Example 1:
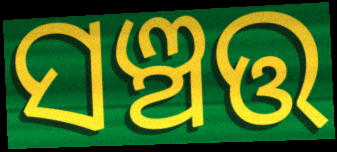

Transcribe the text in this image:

ସଞ୍ଚତ୍ତ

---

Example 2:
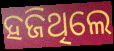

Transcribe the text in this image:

ହଜିଥିଲେ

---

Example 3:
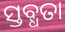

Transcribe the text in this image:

ସ୍ତବ୍ଧତା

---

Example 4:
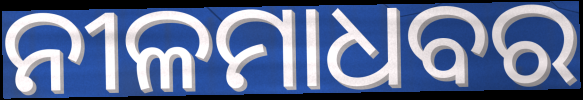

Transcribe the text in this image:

ନୀଳମାଧବର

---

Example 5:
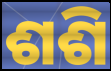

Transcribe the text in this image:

ଶଶି